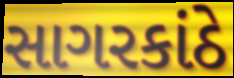
સાગરકાંઠે